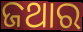
ଜଥାର